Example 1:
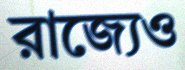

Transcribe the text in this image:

রাজ্যেও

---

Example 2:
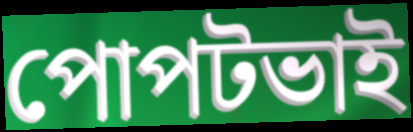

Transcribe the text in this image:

পোপটভাই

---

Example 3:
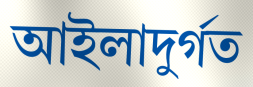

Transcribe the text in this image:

আইলাদুর্গত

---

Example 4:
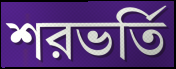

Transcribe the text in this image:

শরভর্তি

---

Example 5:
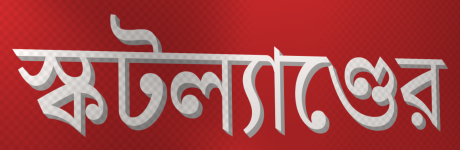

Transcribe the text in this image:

স্কটল্যাণ্ডের